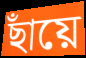
ছাঁয়ে